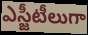
ఎస్జీటీలుగా